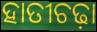
ହାତୀଚଢ଼ା